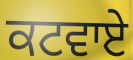
ਕਟਵਾਏ